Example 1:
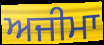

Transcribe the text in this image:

ਅਜੀਮਾ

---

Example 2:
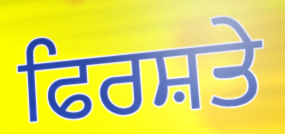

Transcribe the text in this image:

ਫਿਰਸ਼ਤੇ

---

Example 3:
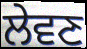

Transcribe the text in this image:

ਲੇਵਣ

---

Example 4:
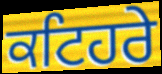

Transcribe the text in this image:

ਕਟਿਹਰੇ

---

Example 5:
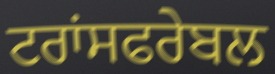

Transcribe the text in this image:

ਟਰਾਂਸਫਰੇਬਲ